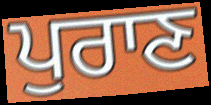
ਪੁਰਾਣ